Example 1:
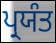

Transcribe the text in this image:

ਪ੍ਰਯੰਤ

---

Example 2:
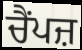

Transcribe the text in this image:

ਚੈਂਪਜ਼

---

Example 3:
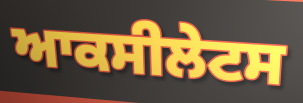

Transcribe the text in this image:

ਆਕਸੀਲੇਟਸ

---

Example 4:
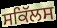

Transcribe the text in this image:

ਸਕਿੱਲਸ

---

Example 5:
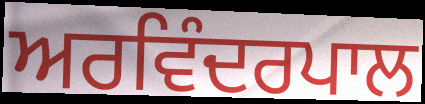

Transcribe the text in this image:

ਅਰਵਿੰਦਰਪਾਲ